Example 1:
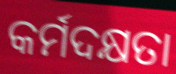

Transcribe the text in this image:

କର୍ମଦକ୍ଷତା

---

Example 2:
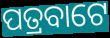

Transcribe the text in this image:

ପତ୍ରବାଟେ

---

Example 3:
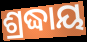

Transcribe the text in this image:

ଶ୍ରଦ୍ଧାୟ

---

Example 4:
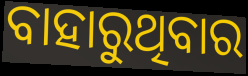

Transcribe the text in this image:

ବାହାରୁଥିବାର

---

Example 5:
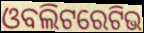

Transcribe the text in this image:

ଓବଲିଟରେଟିଭ